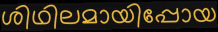
ശിഥിലമായിപ്പോയ